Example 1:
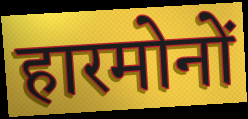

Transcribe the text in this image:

हारमोनों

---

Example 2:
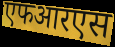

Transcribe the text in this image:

एफआरएस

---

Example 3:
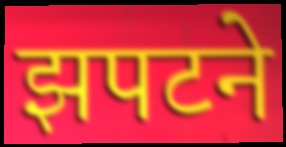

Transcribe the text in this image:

झपटने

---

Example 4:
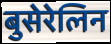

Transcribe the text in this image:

बुसेरेलिन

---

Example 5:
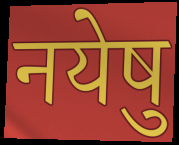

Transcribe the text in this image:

नयेषु